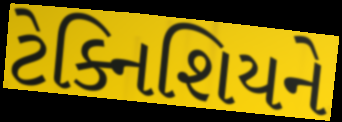
ટેક્નિશિયને